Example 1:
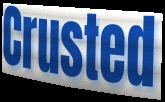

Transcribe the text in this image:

Crusted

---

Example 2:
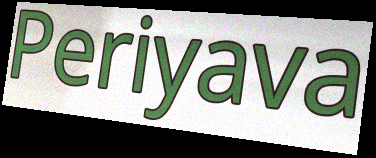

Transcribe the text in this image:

Periyava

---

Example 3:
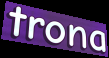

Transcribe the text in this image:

trona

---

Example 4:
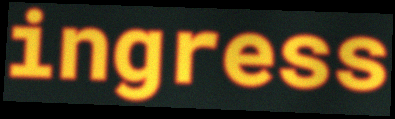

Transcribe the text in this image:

ingress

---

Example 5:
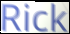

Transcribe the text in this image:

Rick